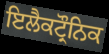
ਇਲੈਕਟ੍ਰੌਨਿਕ